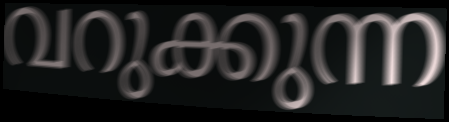
വറുക്കുന്ന